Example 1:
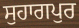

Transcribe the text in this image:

ਸੁਹਾਗਪੁਰ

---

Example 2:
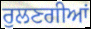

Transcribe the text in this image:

ਰੁਲਣਗੀਆਂ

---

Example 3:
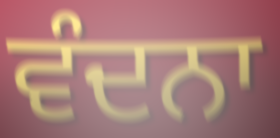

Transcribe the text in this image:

ਵੰਦਨਾ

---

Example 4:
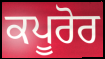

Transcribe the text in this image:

ਕਪੂਰੋਰ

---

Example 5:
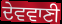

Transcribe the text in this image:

ਦੇਵਵਾਣੀ